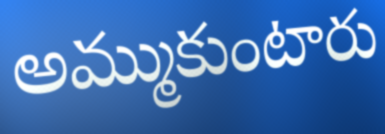
అమ్ముకుంటారు